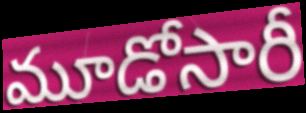
మూడోసారీ